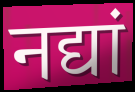
नद्यां